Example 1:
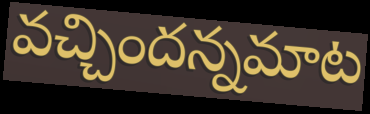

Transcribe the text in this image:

వచ్చిందన్నమాట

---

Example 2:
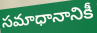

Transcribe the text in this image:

సమాధానానికీ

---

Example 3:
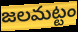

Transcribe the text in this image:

జలమట్టం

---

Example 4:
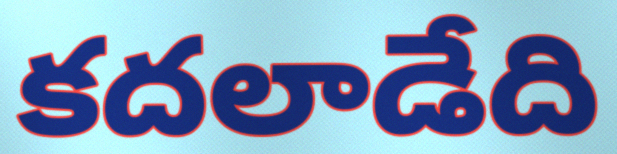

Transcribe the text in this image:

కదలాడేది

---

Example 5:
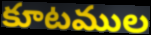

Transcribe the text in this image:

కూటముల